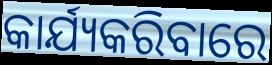
କାର୍ଯ୍ୟକରିବାରେ